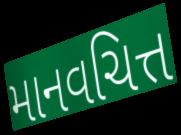
માનવચિત્ત